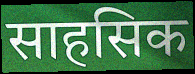
साहसिक